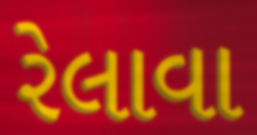
રેલાવા